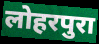
लोहरपुरा